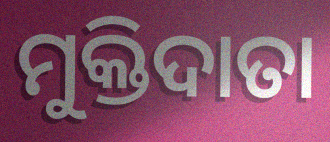
ମୁକ୍ତିଦାତା